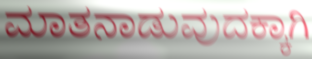
ಮಾತನಾಡುವುದಕ್ಕಾಗಿ